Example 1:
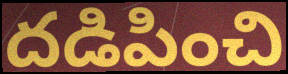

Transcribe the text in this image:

దడిపించి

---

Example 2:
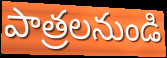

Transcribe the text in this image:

పాత్రలనుండి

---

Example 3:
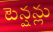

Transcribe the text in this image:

టెన్షన్లు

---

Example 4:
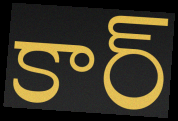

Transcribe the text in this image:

కార్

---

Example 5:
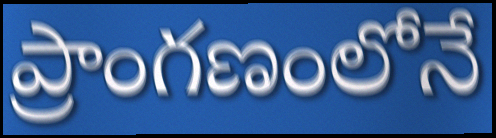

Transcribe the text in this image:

ప్రాంగణంలోనే